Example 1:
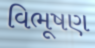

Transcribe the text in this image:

વિભૂષણ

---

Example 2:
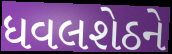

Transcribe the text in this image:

ધવલશેઠને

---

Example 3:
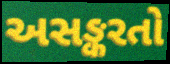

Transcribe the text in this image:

અસઙ્કરતો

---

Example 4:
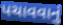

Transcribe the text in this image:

પચાવવાનું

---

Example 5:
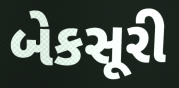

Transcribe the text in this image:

બેકસૂરી